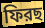
ফিরছ